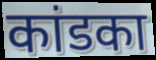
कांडका